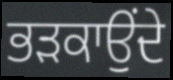
ਭੜਕਾਉਂਦੇ